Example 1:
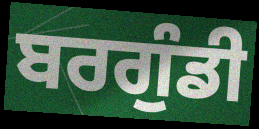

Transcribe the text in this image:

ਬਰਗੁੰਡੀ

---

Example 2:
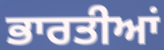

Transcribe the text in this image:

ਭਾਰਤੀਆਂ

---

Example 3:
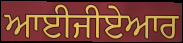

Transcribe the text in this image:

ਆਈਜੀਏਆਰ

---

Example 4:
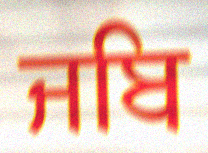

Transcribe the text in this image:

ਜਬਿ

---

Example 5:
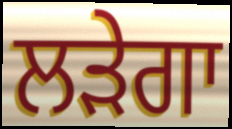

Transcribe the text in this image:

ਲੜੇਗਾ